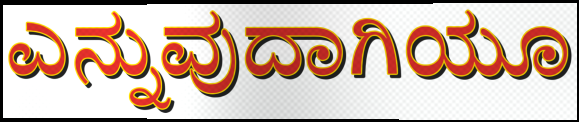
ಎನ್ನುವುದಾಗಿಯೂ